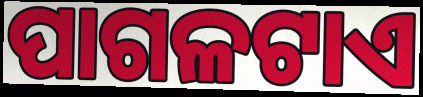
ପାଗଳଟାଏ